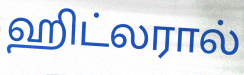
ஹிட்லரால்